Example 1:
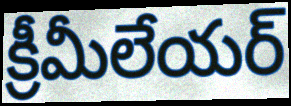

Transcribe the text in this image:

క్రీమీలేయర్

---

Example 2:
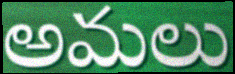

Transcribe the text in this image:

అమలు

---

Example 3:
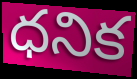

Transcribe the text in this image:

ధనిక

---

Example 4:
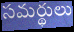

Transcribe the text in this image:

సమర్థులు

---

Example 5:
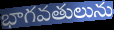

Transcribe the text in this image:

భాగవతులును